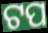
ଟପ